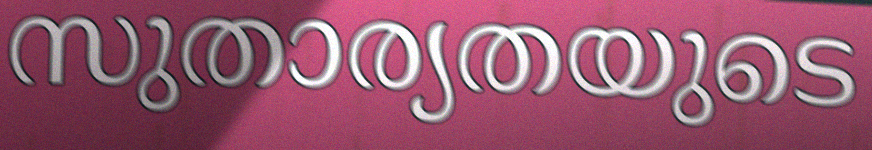
സുതാര്യതയുടെ